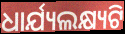
ଧାର୍ଯ୍ୟଲକ୍ଷ୍ୟଟି